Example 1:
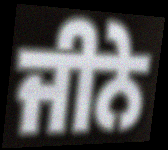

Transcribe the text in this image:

ਜੀਨੇ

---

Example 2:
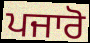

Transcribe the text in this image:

ਪਜਾਰੋ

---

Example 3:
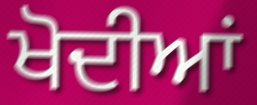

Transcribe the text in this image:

ਖੋਦੀਆਂ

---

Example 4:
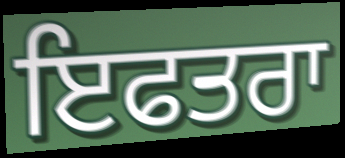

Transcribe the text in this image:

ਇਫਤਰਾ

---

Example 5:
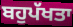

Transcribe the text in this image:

ਬਹੁਪੱਖਤਾ